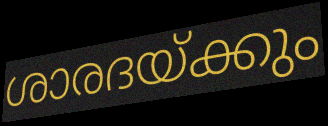
ശാരദയ്ക്കും